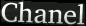
Chanel